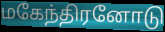
மகேந்திரனோடு